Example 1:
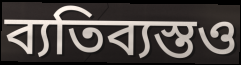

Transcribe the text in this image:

ব্যতিব্যস্তও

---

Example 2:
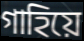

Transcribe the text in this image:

গাহিয়ে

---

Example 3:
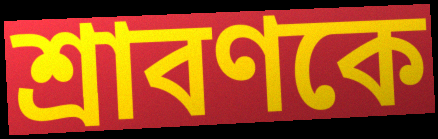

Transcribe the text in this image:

শ্রাবণকে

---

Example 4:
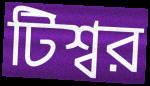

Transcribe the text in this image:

টিশ্বর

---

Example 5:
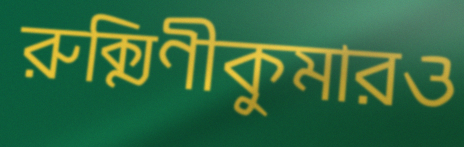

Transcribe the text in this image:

রুক্মিণীকুমারও